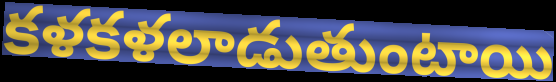
కళకళలాడుతుంటాయి